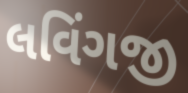
લવિંગજી